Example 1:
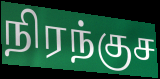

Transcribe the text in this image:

நிரந்குச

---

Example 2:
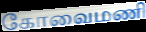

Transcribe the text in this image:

கோவைமணி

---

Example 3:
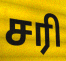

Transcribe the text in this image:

சரி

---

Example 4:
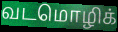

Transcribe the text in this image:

வடமொழிக்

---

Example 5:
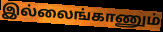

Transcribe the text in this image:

இல்லைங்காணும்